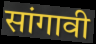
सांगावी